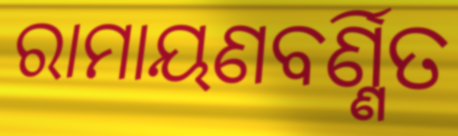
ରାମାୟଣବର୍ଣ୍ଣିତ